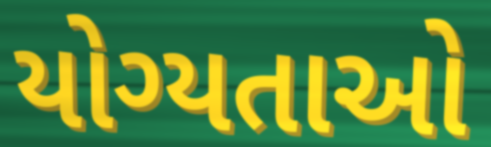
યોગ્યતાઓ